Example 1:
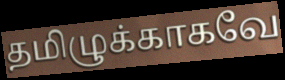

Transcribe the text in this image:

தமிழுக்காகவே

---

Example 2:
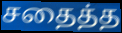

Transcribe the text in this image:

சதைத்த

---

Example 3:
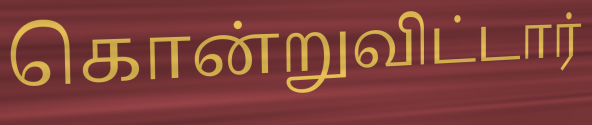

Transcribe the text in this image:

கொன்றுவிட்டார்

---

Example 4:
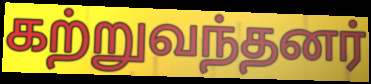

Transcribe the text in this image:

கற்றுவந்தனர்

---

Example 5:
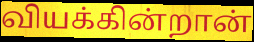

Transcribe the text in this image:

வியக்கின்றான்